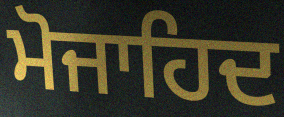
ਮੋਜਾਹਿਦ